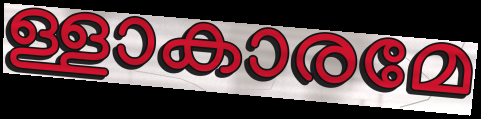
ള്ളാകാരമേ